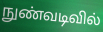
நுண்வடிவில்